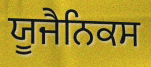
ਯੂਜੈਨਿਕਸ